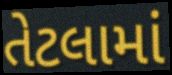
તેટલામાં